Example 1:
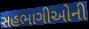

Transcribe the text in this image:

સહભાગીઓની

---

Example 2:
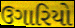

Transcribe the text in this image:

ઉગારિયો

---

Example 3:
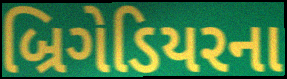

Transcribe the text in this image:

બ્રિગેડિયરના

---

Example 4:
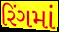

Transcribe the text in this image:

રિંગમાં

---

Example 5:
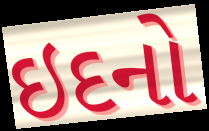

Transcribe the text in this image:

ઇદનો